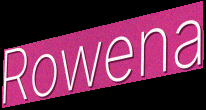
Rowena